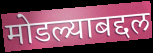
मोडल्याबद्दल